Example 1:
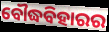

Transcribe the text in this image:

ବୌଦ୍ଧବିହାରର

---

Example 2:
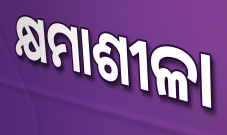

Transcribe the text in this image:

କ୍ଷମାଶୀଳା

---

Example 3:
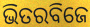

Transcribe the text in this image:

ଭିତରବିଜେ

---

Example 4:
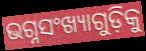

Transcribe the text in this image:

ଭଗ୍ନସଂଖ୍ୟାଗୁଡ଼ିକୁ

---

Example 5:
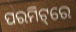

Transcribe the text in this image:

ପରମିଟ୍‌ରେ